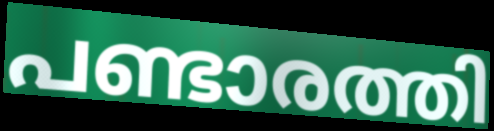
പണ്ടാരത്തി